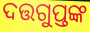
ଦତ୍ତଗୁପ୍ତଙ୍କ